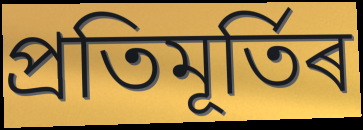
প্ৰতিমূৰ্তিৰ